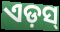
ଏଡ଼ସ୍